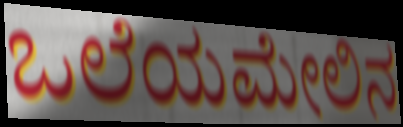
ಒಲೆಯಮೇಲಿನ